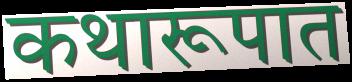
कथारूपात